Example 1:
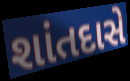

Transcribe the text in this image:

શાંતદાસે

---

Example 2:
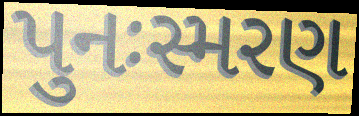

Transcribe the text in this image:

પુનઃસ્મરણ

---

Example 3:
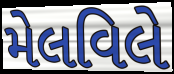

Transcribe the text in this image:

મેલવિલે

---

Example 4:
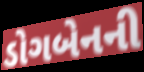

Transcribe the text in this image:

ડોગબેનની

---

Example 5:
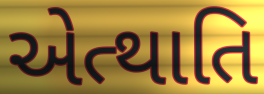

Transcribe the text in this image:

એત્થાતિ